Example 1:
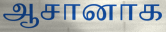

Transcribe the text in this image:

ஆசானாக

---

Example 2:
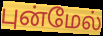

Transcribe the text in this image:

புன்மேல்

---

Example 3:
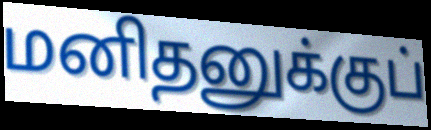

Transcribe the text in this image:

மனிதனுக்குப்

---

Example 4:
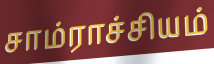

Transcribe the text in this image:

சாம்ராச்சியம்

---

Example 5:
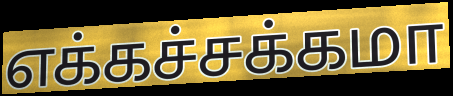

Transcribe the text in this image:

எக்கச்சக்கமா